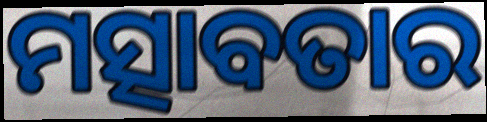
ମତ୍ସାବତାର